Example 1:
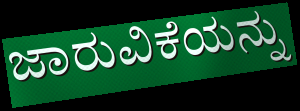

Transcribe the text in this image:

ಜಾರುವಿಕೆಯನ್ನು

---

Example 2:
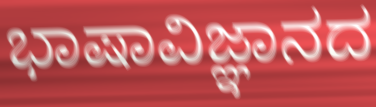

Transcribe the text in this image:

ಭಾಷಾವಿಜ್ಞಾನದ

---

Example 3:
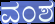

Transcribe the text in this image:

ವಂಶ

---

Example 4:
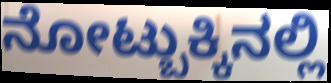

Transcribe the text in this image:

ನೋಟ್ಬುಕ್ಕಿನಲ್ಲಿ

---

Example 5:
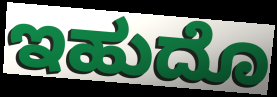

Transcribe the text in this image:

ಇಹುದೊ